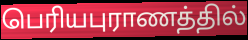
பெரியபுராணத்தில்